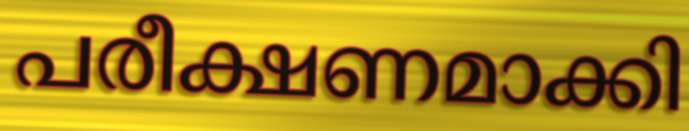
പരീക്ഷണമാക്കി